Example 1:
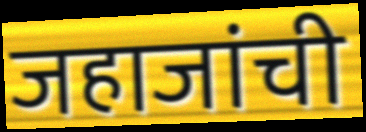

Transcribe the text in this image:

जहाजांची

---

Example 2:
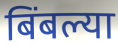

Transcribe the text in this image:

बिंबल्या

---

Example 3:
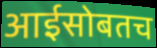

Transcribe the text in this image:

आईसोबतच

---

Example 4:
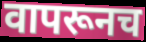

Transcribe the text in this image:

वापरूनच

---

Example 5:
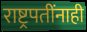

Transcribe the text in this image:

राष्ट्रपतींनाही